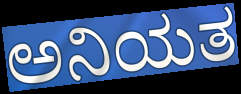
ಅನಿಯತ